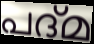
പദ്മ